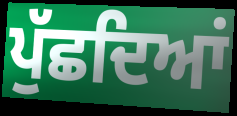
ਪੁੱਛਦਿਆਂ